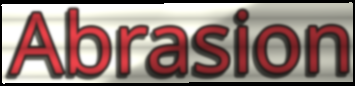
Abrasion